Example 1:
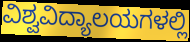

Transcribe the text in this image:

ವಿಶ್ವವಿದ್ಯಾಲಯಗಳಲ್ಲಿ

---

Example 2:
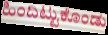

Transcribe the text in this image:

ಹಿಂದಿಟ್ಟುಕೊಂಡು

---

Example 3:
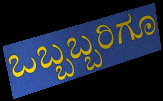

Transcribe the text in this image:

ಒಬ್ಬಬ್ಬರಿಗೂ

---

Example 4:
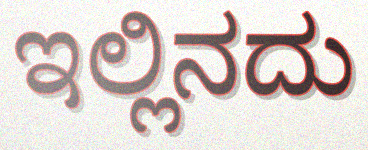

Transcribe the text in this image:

ಇಲ್ಲಿನದು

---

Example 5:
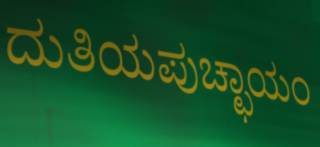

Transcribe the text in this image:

ದುತಿಯಪುಚ್ಛಾಯಂ